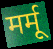
मर्मू